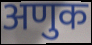
अणुक